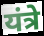
यंत्रे